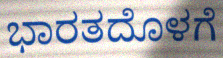
ಭಾರತದೊಳಗೆ